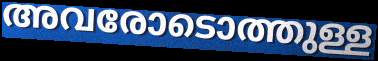
അവരോടൊത്തുള്ള